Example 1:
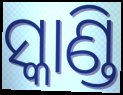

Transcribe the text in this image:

ସ୍କାଣ୍ଡି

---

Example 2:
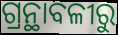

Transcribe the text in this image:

ଗ୍ରନ୍ଥାବଳୀରୁ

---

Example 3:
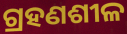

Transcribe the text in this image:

ଗ୍ରହଣଶୀଳ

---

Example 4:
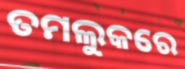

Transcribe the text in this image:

ତମଲୁକରେ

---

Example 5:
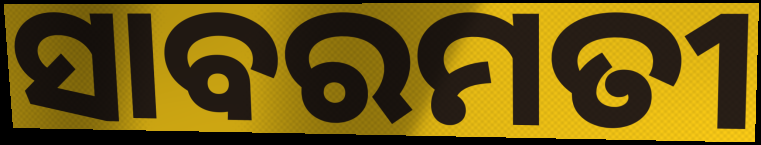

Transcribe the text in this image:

ସାବରମତୀ